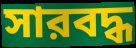
সারবদ্ধ